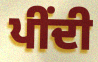
ਪੀਂਦੀ